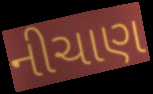
નીચાણ